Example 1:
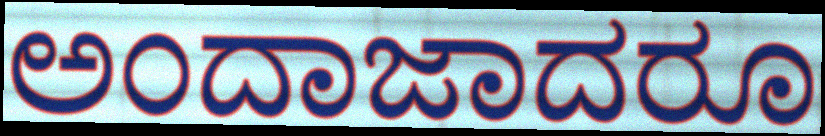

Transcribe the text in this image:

ಅಂದಾಜಾದರೂ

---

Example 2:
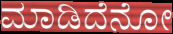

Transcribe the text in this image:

ಮಾಡಿದೆನೋ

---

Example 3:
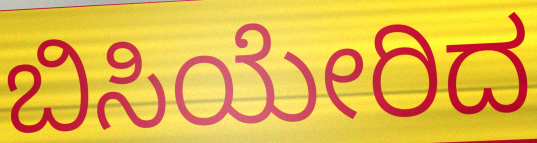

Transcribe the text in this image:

ಬಿಸಿಯೇರಿದ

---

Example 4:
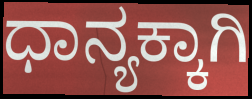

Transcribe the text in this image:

ಧಾನ್ಯಕ್ಕಾಗಿ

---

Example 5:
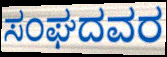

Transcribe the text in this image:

ಸಂಘದವರ